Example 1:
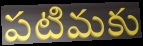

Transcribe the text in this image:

పటిమకు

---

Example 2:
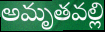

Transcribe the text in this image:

అమృతవల్లి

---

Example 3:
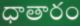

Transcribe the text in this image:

ధాతారం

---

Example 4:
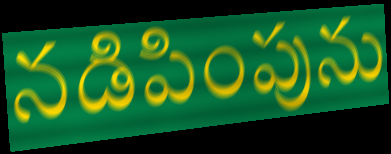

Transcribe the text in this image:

నడిపింపును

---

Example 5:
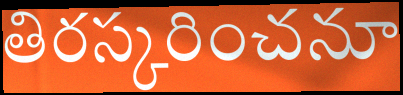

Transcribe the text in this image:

తిరస్కరించనూ